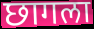
छागला